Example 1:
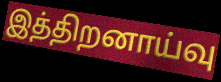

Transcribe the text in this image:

இத்திறனாய்வு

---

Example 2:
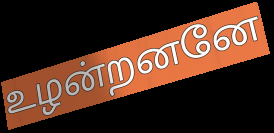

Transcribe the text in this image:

உழன்றனனே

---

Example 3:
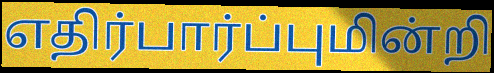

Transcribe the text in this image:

எதிர்பார்ப்புமின்றி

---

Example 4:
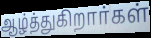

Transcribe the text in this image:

ஆழ்த்துகிறார்கள்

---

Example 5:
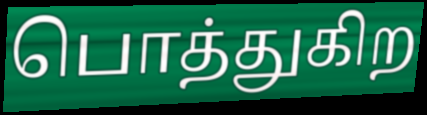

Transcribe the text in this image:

பொத்துகிற